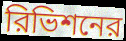
রিভিশনের